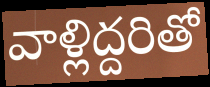
వాళ్లిద్దరితో